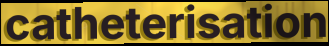
catheterisation